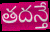
తదన్తే